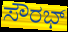
ಸೌರಭ್